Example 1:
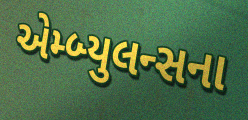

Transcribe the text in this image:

એમ્બ્યુલન્સના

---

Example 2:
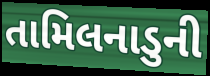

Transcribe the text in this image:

તામિલનાડુની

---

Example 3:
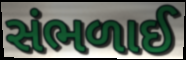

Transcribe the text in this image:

સંભળાઈ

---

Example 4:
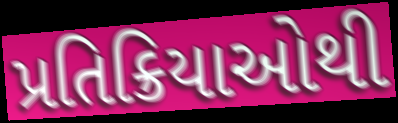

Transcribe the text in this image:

પ્રતિક્રિયાઓથી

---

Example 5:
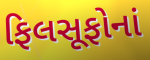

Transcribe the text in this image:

ફિલસૂફોનાં